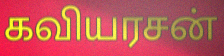
கவியரசன்